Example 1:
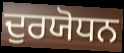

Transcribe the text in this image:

ਦੁਰਯੋਧਨ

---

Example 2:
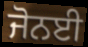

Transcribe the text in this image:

ਜੋਨਈ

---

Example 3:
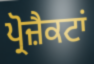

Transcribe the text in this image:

ਪ੍ਰੋਜ਼ੈਕਟਾਂ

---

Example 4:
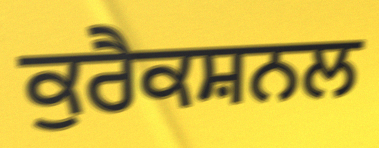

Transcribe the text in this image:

ਕੁਰੈਕਸ਼ਨਲ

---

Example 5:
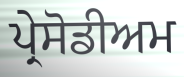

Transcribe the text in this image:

ਪ੍ਰੇਸੋਡੀਅਮ